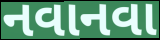
નવાનવા